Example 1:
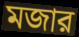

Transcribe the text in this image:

মজার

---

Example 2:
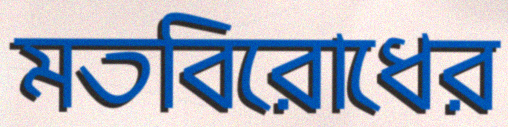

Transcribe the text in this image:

মতবিরোধের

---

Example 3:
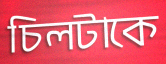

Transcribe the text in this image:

চিলটাকে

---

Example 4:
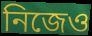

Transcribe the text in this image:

নিজেও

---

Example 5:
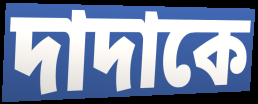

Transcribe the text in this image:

দাদাকে